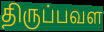
திருப்பவள